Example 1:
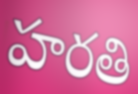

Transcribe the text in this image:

హరతి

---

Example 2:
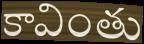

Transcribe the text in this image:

కావింతు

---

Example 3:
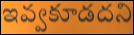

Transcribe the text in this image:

ఇవ్వకూడదని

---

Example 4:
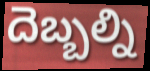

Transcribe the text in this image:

దెబ్బల్ని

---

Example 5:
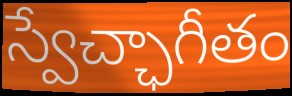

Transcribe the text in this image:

స్వేచ్ఛాగీతం